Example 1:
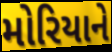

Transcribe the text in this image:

મોરિયાને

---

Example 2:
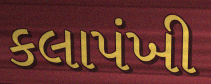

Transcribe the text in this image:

કલાપંખી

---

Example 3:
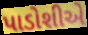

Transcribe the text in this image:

પાડોશીએ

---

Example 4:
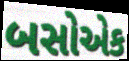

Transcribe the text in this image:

બસોએક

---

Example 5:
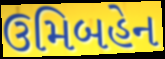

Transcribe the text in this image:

ઉમિબહેન